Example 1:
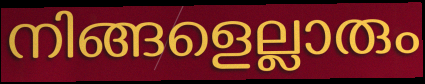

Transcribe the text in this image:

നിങ്ങളെല്ലാരും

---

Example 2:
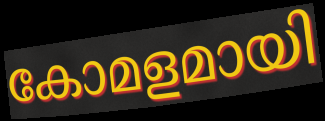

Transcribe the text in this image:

കോമളമായി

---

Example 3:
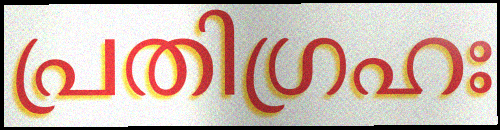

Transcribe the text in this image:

പ്രതിഗ്രഹഃ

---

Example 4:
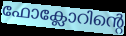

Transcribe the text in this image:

ഫോക്ലോറിന്റെ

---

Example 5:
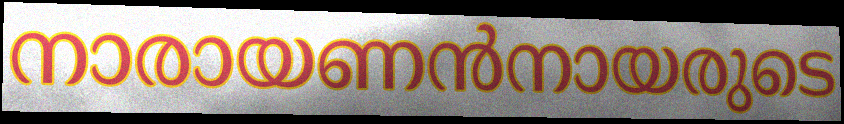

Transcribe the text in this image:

നാരായണൻനായരുടെ